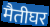
मैतीघर